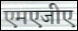
एमएजीए